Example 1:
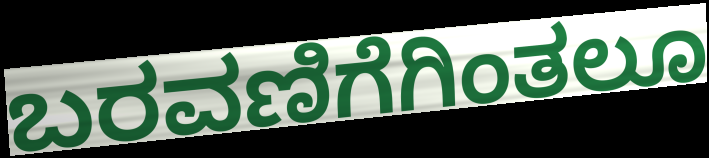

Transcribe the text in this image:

ಬರವಣಿಗೆಗಿಂತಲೂ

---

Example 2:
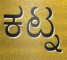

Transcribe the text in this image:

ಕಟ್ನ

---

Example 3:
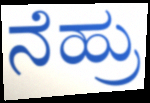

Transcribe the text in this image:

ನೆಹ್ರು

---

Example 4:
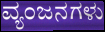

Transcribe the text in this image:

ವ್ಯಂಜನಗಳು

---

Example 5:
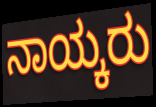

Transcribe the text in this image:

ನಾಯ್ಕರು